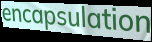
encapsulation